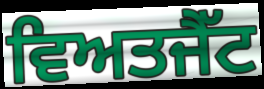
ਵਿਅਤਜੈੱਟ